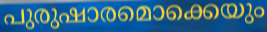
പുരുഷാരമൊക്കെയും